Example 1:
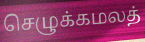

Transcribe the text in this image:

செழுக்கமலத்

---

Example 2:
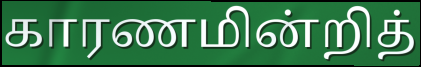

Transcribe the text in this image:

காரணமின்றித்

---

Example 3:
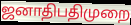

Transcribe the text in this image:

ஜனாதிபதிமுறை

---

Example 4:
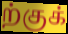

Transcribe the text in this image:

ற்குக்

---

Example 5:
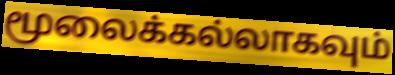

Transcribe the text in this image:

மூலைக்கல்லாகவும்